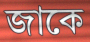
জাকে